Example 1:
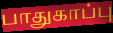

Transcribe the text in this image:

பாதுகாப்பு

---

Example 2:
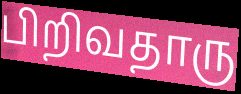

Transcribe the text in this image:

பிறிவதாரு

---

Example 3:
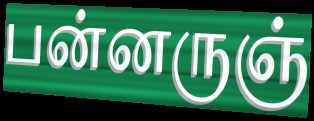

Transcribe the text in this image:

பன்னருஞ்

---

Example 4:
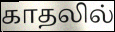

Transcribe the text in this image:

காதலில்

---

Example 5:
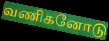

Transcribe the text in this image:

வணிகனோடு